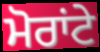
ਮੋਰਾਂਟੇ